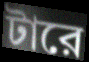
টারে